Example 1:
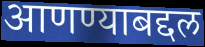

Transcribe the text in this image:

आणण्याबद्दल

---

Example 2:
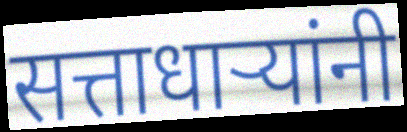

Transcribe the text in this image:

सत्ताधाऱ्यांनी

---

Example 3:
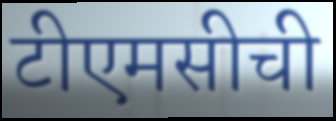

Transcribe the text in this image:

टीएमसीची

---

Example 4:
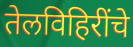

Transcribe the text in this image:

तेलविहिरींचे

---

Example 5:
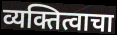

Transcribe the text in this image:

व्यक्तित्वाचा